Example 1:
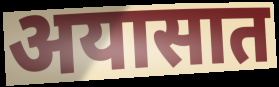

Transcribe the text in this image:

अयासात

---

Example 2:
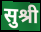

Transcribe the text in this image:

सुश्री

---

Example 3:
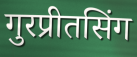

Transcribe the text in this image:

गुरप्रीतसिंग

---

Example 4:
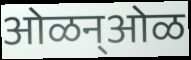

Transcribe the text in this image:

ओळन्ओळ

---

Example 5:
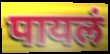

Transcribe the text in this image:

पायलं